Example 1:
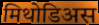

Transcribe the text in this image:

मिथोडिअस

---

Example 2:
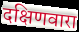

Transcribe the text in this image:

दक्षिणवारा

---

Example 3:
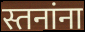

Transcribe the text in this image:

स्तनांना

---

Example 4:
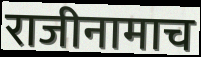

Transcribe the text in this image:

राजीनामाच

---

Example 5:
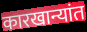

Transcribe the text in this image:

कारखान्यांत